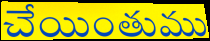
చేయింతుము